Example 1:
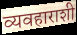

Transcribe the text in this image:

व्यवहाराशी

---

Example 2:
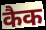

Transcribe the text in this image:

कैक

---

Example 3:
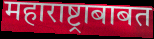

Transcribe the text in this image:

महाराष्ट्राबाबत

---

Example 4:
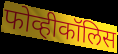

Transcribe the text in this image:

फोव्हीकॉलिस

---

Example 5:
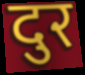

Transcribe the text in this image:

दुर